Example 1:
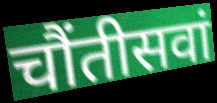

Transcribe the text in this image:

चौंतीसवां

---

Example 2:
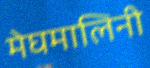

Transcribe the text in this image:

मेघमालिनी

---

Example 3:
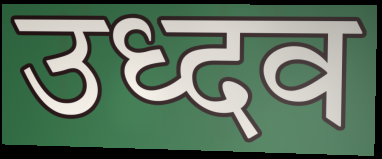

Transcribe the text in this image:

उध्दव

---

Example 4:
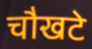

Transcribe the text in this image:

चौखटे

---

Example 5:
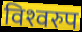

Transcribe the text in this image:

विश्वरुप